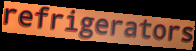
refrigerators